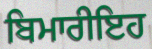
ਬਿਮਾਰੀਇਹ